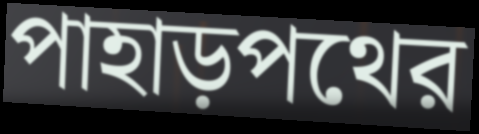
পাহাড়পথের